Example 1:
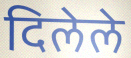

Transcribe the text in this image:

दिलेले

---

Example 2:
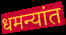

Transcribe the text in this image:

धमन्यांत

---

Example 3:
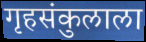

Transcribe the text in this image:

गृहसंकुलाला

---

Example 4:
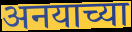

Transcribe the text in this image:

अनयाच्या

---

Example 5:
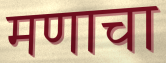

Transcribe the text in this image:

मणाचा